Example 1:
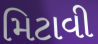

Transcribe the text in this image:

મિટાવી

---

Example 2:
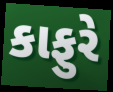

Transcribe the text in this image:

કાફુરે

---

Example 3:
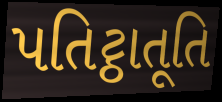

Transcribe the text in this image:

પતિટ્ઠાતૂતિ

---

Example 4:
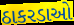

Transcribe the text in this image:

ઠાકરડાઓ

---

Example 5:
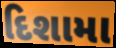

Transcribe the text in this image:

દિશામા